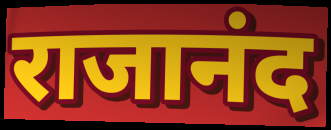
राजानंद